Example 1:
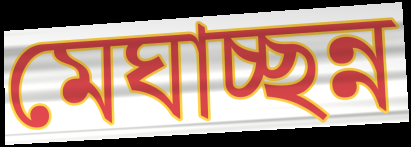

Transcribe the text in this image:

মেঘাচ্ছন্ন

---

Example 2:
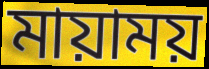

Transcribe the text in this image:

মায়াময়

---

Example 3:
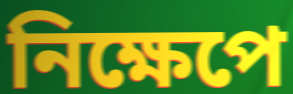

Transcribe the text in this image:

নিক্ষেপে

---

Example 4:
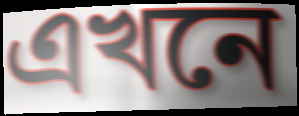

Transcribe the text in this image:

এখনে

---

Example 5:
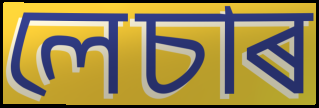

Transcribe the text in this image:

লেচাৰ